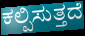
ಕಲ್ಪಿಸುತ್ತದೆ